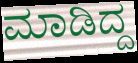
ಮಾಡಿದ್ದ